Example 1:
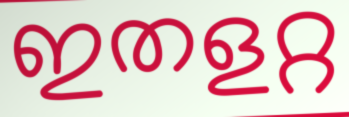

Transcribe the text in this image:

ഇതളറ്റ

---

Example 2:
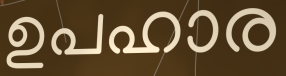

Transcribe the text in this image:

ഉപഹാര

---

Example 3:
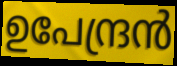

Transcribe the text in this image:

ഉപേന്ദ്രൻ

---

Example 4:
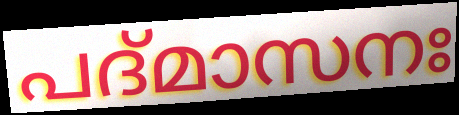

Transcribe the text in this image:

പദ്മാസനഃ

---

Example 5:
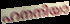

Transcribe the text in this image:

ഹനനിയാ